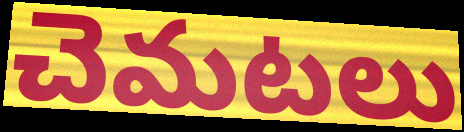
చెమటలు